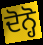
ਦੋਨ੍ਹੋ